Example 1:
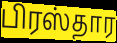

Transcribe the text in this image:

பிரஸ்தார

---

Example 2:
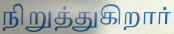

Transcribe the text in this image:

நிறுத்துகிறார்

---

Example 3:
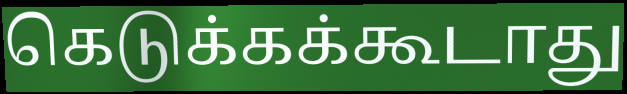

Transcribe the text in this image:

கெடுக்கக்கூடாது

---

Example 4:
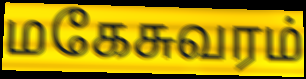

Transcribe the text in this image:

மகேசுவரம்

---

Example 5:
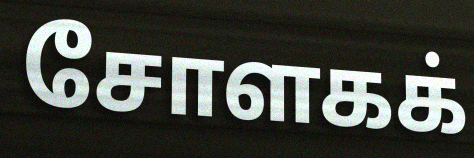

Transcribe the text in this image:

சோளகக்